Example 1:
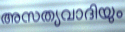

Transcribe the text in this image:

അസത്യവാദിയും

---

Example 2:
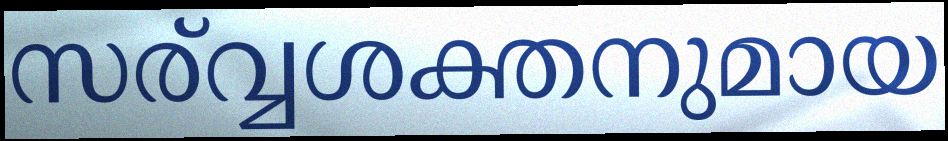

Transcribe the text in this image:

സര്വ്വശക്തനുമായ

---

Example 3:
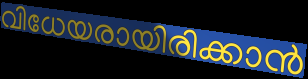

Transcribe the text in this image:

വിധേയരായിരിക്കാൻ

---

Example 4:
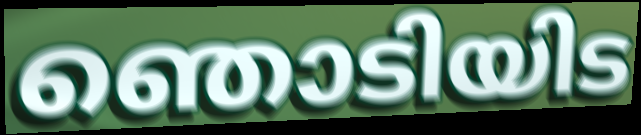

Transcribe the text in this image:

ഞൊടിയിട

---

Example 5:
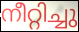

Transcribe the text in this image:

നീറ്റിച്ചു